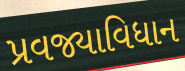
પ્રવજ્યાવિધાન